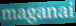
maganai